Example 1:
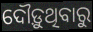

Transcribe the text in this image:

ଦୌଡ଼ୁଥିବାରୁ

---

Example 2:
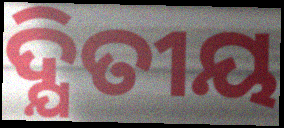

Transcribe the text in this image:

ଦ୍ଯିତୀୟ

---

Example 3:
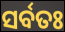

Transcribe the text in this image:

ସର୍ବତଃ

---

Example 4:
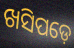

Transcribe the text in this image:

ଖସିପଡ଼େ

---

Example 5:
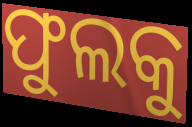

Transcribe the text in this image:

ଫୁଲକୁ